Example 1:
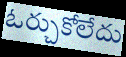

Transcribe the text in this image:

ఓర్చుకోలేదు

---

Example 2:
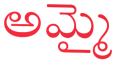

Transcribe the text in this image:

అమ్మై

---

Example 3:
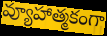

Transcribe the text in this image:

వ్యూహాత్మకంగా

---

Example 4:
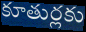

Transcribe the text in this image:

కూతుర్లకు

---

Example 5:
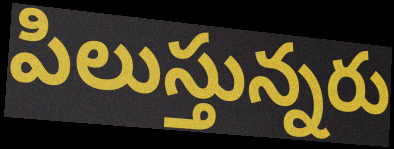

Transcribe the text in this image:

పిలుస్తున్నరు